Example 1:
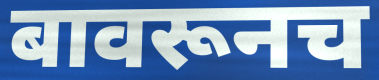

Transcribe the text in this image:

बावरूनच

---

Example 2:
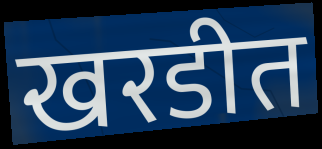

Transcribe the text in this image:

खरडीत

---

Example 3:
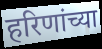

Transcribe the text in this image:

हरिणांच्या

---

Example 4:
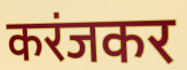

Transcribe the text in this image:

करंजकर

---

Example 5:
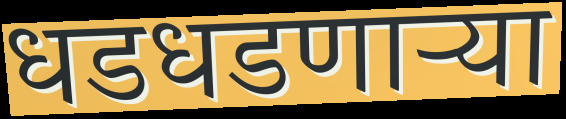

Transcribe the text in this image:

धडधडणाऱ्या